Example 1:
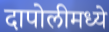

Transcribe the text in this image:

दापोलीमध्ये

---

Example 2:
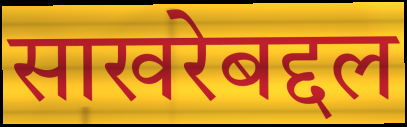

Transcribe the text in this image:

साखरेबद्दल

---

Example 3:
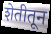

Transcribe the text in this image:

शेतीतून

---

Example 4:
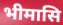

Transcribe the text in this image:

भीमासि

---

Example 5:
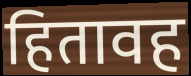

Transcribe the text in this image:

हितावह